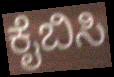
ಕೈಬಿಸಿ